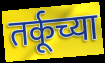
तर्कूच्या